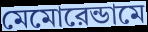
মেমোরেন্ডামে